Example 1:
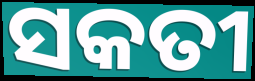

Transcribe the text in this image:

ସକତୀ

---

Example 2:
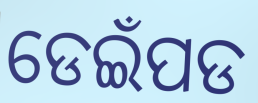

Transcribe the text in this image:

ଡେଇଁପଡ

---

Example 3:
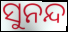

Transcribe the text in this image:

ସୁନନ୍ଦ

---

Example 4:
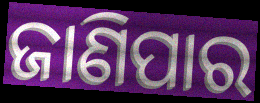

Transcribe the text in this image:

ଜାଣିପାର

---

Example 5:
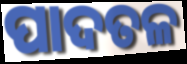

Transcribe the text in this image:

ପାଦତଳ